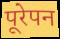
पूरेपन